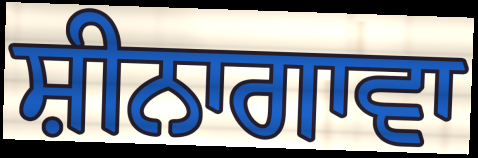
ਸ਼ੀਨਾਗਾਵਾ